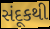
સંદૂકથી